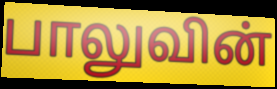
பாலுவின்